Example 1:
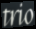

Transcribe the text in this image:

trio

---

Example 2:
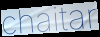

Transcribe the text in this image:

chaitar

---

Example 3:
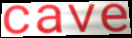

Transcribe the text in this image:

cave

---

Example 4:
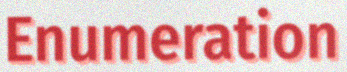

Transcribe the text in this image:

Enumeration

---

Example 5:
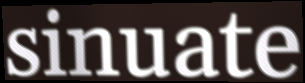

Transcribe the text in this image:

sinuate